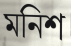
মনিশ